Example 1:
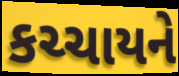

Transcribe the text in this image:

કચ્ચાયને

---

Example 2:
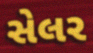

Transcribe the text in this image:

સેલર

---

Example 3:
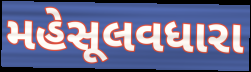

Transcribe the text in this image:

મહેસૂલવધારા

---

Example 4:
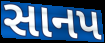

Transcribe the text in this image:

સાનપ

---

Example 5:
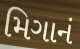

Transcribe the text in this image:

મિગાનં